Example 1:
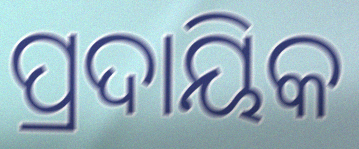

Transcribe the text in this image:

ପ୍ରଦାୟିକ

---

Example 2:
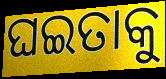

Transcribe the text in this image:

ଘଇତାକୁ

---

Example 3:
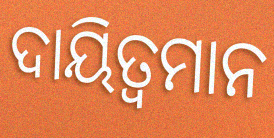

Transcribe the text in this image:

ଦାୟିତ୍ୱମାନ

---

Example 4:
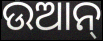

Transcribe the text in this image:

ଉଆନ୍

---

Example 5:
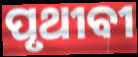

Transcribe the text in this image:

ପୃଥୀବୀ